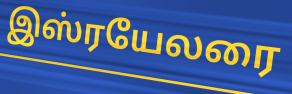
இஸ்ரயேலரை